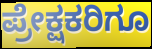
ಪ್ರೇಕ್ಷಕರಿಗೂ